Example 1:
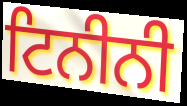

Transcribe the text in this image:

ਟਿਨੀਨੀ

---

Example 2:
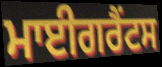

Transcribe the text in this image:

ਮਾਈਗਰੈਂਟਸ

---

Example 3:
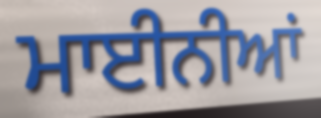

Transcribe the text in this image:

ਮਾਈਨੀਆਂ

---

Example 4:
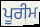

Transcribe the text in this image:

ਪੂਰੀਮ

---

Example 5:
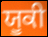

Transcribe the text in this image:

ਯੂਕੀ